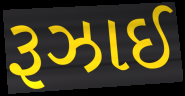
રૂઝાઈ